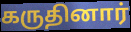
கருதினார்